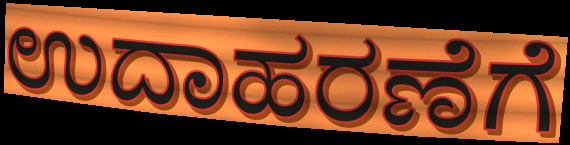
ಉದಾಹರಣೆಗೆ